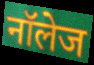
नॉलेज